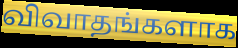
விவாதங்களாக